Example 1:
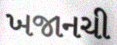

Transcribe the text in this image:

ખજાનચી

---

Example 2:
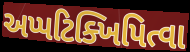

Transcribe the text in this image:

અપ્પટિક્ખિપિત્વા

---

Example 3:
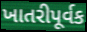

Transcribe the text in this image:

ખાતરીપૂર્વક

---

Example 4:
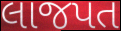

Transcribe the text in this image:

લાજપત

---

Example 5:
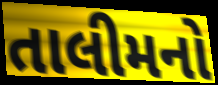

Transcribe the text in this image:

તાલીમનો